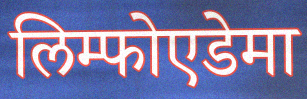
लिम्फोएडेमा